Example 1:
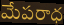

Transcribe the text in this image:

మేపరాధ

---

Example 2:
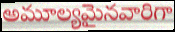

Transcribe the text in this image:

అమూల్యమైనవారిగా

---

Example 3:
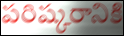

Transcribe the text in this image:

పరిష్కరానికి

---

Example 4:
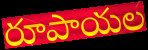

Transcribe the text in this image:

రూపాయల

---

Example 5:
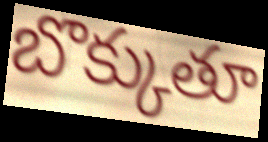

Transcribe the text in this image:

బొక్కుతూ